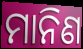
ମାନିଣ